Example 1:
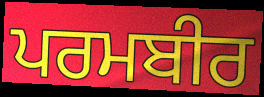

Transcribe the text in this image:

ਪਰਮਬੀਰ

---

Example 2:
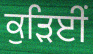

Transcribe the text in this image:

ਕੁੜਿਈਂ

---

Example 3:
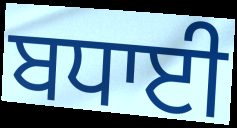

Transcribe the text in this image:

ਬਧਾਈ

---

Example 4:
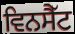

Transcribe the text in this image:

ਵਿਨਸੈੱਟ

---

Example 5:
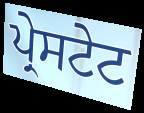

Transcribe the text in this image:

ਪ੍ਰੇਸਟੇਟ